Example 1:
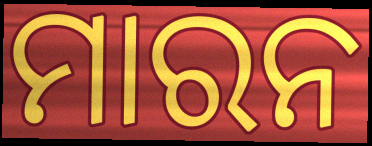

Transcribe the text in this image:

ମାରନ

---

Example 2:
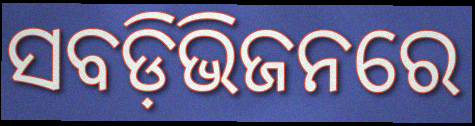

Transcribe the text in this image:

ସବଡ଼ିଭିଜନରେ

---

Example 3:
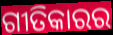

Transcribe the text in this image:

ଗୀତିକାରର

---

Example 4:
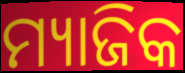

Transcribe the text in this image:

ମ୍ୟାଜିକ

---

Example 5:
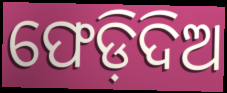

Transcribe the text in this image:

ଫେଡ଼ିଦିଅ